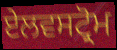
ਏਲਵਸਟ੍ਰੋਮ